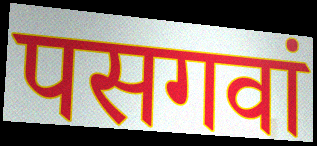
पसगवां